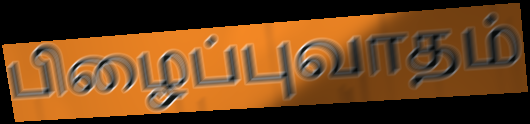
பிழைப்புவாதம்